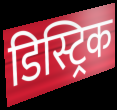
डिस्ट्रिक